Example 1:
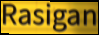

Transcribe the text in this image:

Rasigan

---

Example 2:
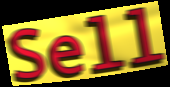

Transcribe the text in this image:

Sell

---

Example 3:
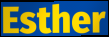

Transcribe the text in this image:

Esther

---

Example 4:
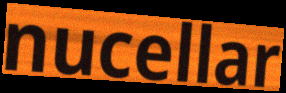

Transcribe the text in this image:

nucellar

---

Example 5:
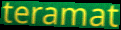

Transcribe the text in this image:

teramat